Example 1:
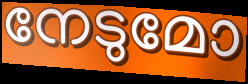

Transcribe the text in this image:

നേടുമോ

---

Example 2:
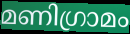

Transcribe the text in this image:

മണിഗ്രാമം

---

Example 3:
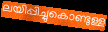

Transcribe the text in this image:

ലയിപ്പിച്ചുകൊണ്ടുള്ള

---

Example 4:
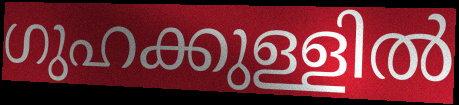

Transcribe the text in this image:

ഗുഹക്കുള്ളിൽ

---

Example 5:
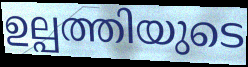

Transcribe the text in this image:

ഉല്പത്തിയുടെ